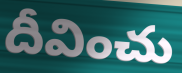
దీవించు